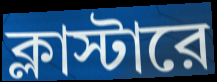
ক্লাস্টারে